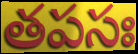
తపసః